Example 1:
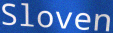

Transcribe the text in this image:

Sloven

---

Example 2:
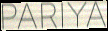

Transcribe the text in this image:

PARIYA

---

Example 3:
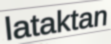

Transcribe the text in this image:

lataktan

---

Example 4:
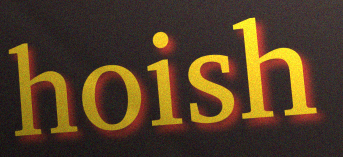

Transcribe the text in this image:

hoish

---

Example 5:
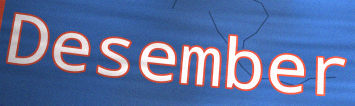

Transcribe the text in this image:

Desember